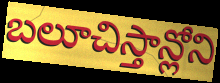
బలూచిస్తాన్లోని